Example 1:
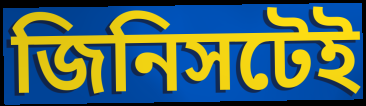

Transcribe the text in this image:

জিনিসটেই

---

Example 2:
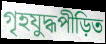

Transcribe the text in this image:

গৃহযুদ্ধপীড়িত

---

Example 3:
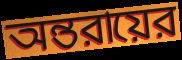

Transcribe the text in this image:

অন্তরায়ের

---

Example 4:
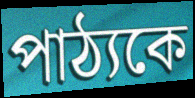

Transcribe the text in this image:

পাঠ্যকে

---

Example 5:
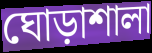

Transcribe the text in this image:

ঘোড়াশালা